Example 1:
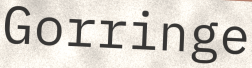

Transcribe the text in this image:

Gorringe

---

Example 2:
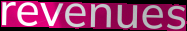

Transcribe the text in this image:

revenues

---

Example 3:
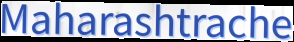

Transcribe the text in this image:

Maharashtrache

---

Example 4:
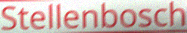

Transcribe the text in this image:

Stellenbosch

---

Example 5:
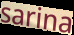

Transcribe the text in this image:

sarina